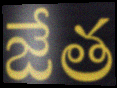
జేత